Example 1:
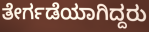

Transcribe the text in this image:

ತೇರ್ಗಡೆಯಾಗಿದ್ದರು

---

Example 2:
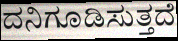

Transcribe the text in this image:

ದನಿಗೂಡಿಸುತ್ತದೆ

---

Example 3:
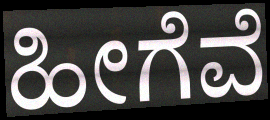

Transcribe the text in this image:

ಹೀಗೆವೆ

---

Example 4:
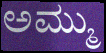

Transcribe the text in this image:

ಅಮ್ಮು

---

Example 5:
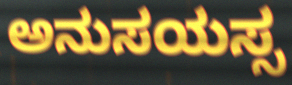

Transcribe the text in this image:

ಅನುಸಯಸ್ಸ